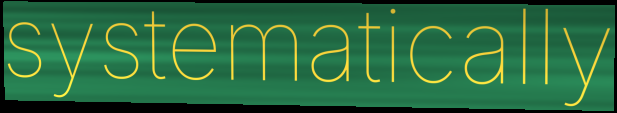
systematically